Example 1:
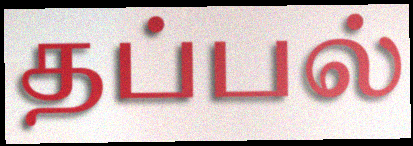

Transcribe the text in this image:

தப்பல்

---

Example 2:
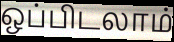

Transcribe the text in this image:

ஒப்பிடலாம்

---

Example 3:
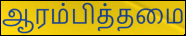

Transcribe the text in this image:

ஆரம்பித்தமை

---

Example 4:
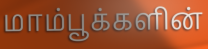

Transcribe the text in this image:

மாம்பூக்களின்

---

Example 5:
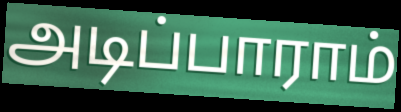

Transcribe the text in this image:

அடிப்பாராம்